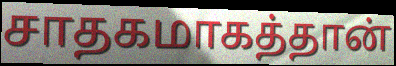
சாதகமாகத்தான்